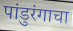
पांडुरंगाचा